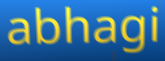
abhagi